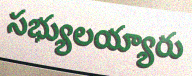
సభ్యులయ్యారు